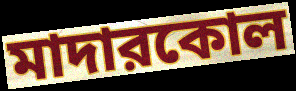
মাদারকোল